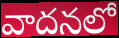
వాదనలో